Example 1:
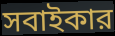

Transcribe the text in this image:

সবাইকার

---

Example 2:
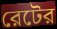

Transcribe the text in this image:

রেটের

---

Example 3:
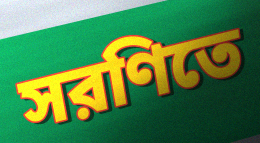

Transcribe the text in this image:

সরণিতে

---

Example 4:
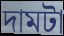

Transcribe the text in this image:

দামটা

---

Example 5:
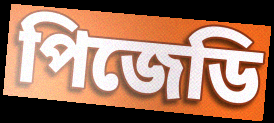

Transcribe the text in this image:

পিজেডি